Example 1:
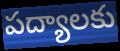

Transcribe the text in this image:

పద్యాలకు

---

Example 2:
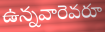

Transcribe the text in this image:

ఉన్నవారెవరూ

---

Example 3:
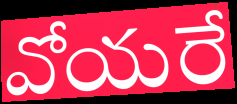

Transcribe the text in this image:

వోయరే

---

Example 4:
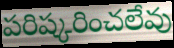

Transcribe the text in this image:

పరిష్కరించలేవు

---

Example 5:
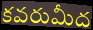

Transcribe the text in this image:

కవరుమీద